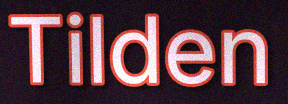
Tilden